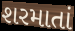
શરમાતાં